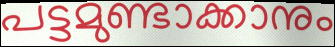
പട്ടമുണ്ടാക്കാനും